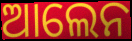
ଆଲେନ